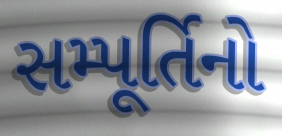
સમ્પૂર્તિનો